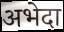
अभेदा